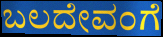
ಬಲದೇವಂಗೆ